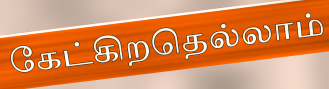
கேட்கிறதெல்லாம்